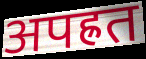
अपह्रत